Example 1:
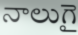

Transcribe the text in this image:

నాలుగై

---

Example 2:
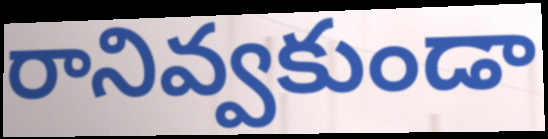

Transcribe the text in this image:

రానివ్వకుండా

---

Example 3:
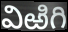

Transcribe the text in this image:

విఱిగి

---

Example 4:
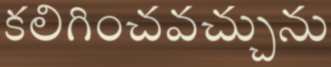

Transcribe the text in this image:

కలిగించవచ్చును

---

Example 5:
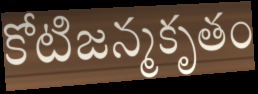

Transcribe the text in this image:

కోటిజన్మకృతం